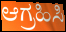
ಆಗ್ರಹಿಸಿ